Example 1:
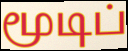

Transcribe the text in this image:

மூடிப்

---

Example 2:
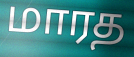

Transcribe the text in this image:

மாரத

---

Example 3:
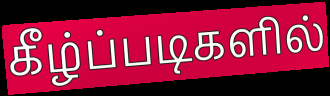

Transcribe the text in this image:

கீழ்ப்படிகளில்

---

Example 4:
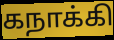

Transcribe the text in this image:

கநாக்கி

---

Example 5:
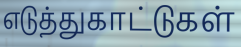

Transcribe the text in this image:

எடுத்துகாட்டுகள்